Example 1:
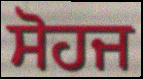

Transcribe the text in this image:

ਸੋਹਜ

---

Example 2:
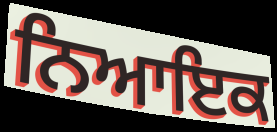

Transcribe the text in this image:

ਨਿਆਇਕ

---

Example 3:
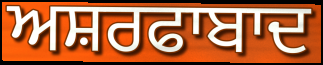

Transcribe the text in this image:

ਅਸ਼ਰਫਾਬਾਦ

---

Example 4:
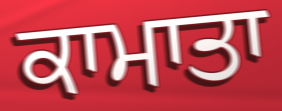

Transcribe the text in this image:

ਕਾਮਾਤਾ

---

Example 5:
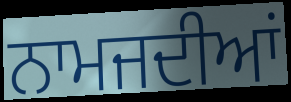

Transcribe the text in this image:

ਨਾਮਜਦੀਆਂ